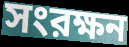
সংরক্ষন